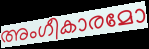
അംഗീകാരമോ